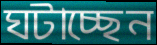
ঘটাচ্ছেন